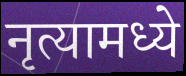
नृत्यामध्ये